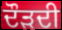
ਦੌੜਦੀ